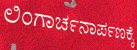
ಲಿಂಗಾರ್ಚನಾರ್ಪಣಕ್ಕೆ